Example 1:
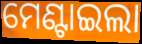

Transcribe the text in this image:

ମେଣ୍ଟାଇଲା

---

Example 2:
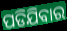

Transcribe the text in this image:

ପଡିଯିବାର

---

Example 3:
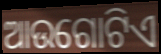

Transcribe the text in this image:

ଆଉଗୋଟିଏ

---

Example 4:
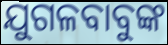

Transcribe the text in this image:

ଯୁଗଳବାବୁଙ୍କ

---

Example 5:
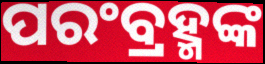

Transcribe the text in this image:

ପରଂବ୍ରହ୍ମଙ୍କ